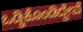
ಒಡ್ಡಿಕೊಂಡಿದ್ದೇವೆ